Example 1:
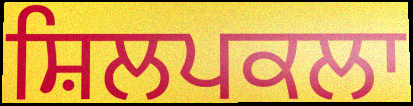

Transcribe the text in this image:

ਸ਼ਿਲਪਕਲਾ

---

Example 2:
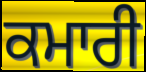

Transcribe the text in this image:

ਕਮਾਰੀ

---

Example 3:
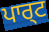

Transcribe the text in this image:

ਪਾਰ੍ਟ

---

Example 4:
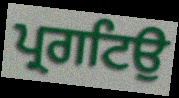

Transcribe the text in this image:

ਪ੍ਰਗਟਿਉ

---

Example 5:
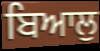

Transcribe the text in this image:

ਬਿਆਲੁ